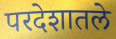
परदेशातले